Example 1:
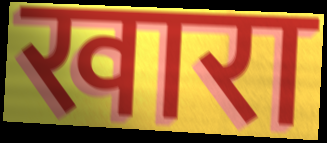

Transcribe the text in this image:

खारा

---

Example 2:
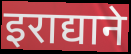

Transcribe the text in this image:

इराद्याने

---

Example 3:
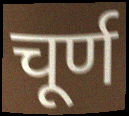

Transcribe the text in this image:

चूर्ण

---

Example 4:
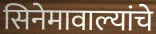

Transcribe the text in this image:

सिनेमावाल्यांचे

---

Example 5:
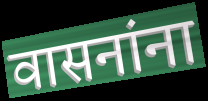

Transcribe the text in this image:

वासनांना